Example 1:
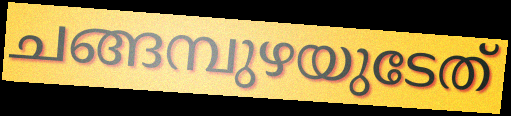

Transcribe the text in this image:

ചങ്ങമ്പുഴയുടേത്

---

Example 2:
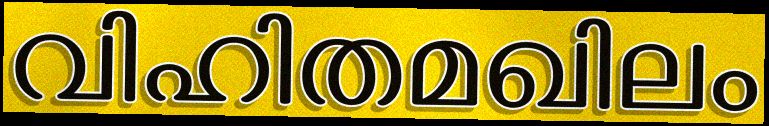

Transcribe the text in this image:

വിഹിതമഖിലം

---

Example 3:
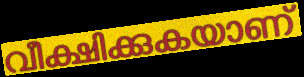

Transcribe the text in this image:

വീക്ഷിക്കുകയാണ്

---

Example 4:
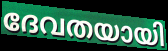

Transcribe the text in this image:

ദേവതയായി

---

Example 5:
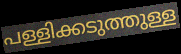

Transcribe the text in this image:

പള്ളിക്കടുത്തുള്ള